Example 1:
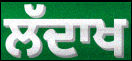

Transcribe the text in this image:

ਲੱਦਾਖ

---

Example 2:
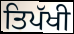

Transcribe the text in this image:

ਤਿਪੱਖੀ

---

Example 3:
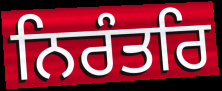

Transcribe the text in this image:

ਨਿਰੰਤਰਿ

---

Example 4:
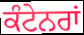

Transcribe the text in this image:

ਕੰਟੇਨਰਾਂ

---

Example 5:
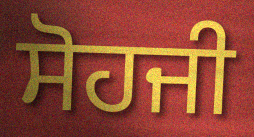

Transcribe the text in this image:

ਸੋਹਜੀ